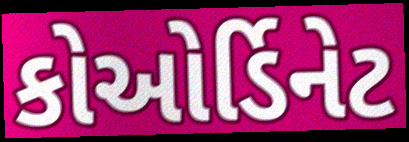
કોઓર્ડિનેટ